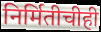
निर्मितीचीही